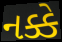
નક્કે